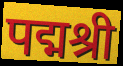
पद्मश्री